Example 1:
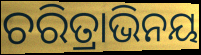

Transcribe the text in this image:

ଚରିତ୍ରାଭିନୟ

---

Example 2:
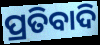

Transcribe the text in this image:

ପ୍ରତିବାଦି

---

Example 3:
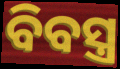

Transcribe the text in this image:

ବିବସ୍ତ୍ର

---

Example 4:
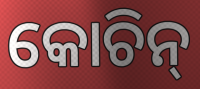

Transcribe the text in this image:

କୋଚିନ୍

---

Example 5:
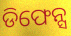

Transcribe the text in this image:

ଡିଫେନ୍ସ